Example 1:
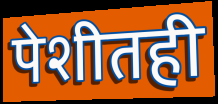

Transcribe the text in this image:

पेशीतही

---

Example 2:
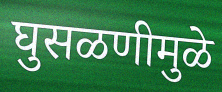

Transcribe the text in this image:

घुसळणीमुळे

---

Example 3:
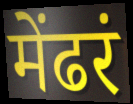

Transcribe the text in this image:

मेंढरं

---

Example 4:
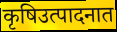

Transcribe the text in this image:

कृषिउत्पादनात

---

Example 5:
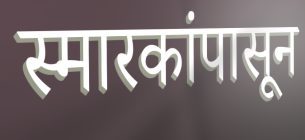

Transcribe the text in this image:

स्मारकांपासून